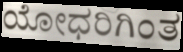
ಯೋಧರಿಗಿಂತ